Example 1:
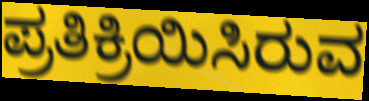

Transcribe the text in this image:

ಪ್ರತಿಕ್ರಿಯಿಸಿರುವ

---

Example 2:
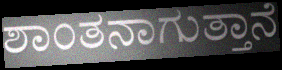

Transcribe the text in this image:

ಶಾಂತನಾಗುತ್ತಾನೆ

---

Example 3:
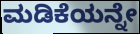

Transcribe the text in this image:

ಮಡಿಕೆಯನ್ನೇ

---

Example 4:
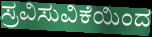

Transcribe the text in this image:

ಸ್ರವಿಸುವಿಕೆಯಿಂದ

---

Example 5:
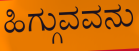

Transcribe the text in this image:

ಹಿಗ್ಗುವವನು